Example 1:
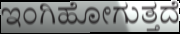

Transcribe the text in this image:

ಇಂಗಿಹೋಗುತ್ತದೆ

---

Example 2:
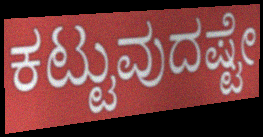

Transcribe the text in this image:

ಕಟ್ಟುವುದಷ್ಟೇ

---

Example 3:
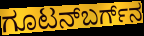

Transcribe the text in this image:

ಗೂಟನ್‌ಬರ್ಗ್‌ನ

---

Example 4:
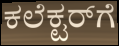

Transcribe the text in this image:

ಕಲೆಕ್ಟರ್‌ಗೆ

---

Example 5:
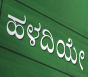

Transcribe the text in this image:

ಹಳದಿಯೇ